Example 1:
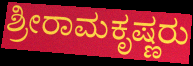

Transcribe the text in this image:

ಶ್ರೀರಾಮಕೃಷ್ಣರು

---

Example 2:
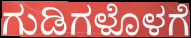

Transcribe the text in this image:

ಗುಡಿಗಳೊಳಗೆ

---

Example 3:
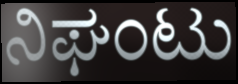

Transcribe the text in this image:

ನಿಘಂಟು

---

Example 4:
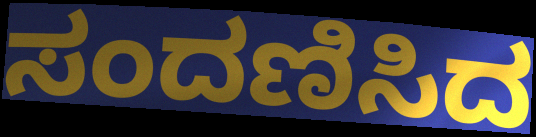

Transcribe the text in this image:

ಸಂದಣಿಸಿದ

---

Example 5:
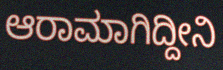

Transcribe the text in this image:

ಆರಾಮಾಗಿದ್ದೀನಿ